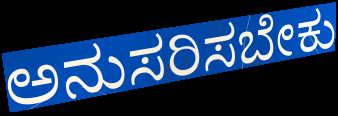
ಅನುಸರಿಸಬೇಕು